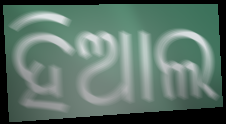
ହିଆଲ